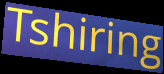
Tshiring